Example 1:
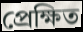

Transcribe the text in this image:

প্রেক্ষিত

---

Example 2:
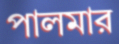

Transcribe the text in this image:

পালমার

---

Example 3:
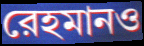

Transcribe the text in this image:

রেহমানও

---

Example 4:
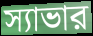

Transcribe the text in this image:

স্যাভার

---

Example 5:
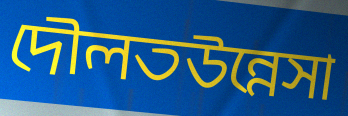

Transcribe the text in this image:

দৌলতউন্নেসা